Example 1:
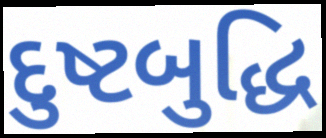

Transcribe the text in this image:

દુષ્ટબુદ્ધિ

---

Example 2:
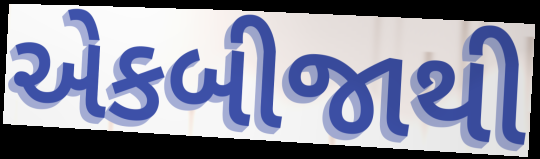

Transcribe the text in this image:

એકબીજાથી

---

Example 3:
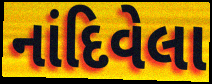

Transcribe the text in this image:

નાંદિવેલા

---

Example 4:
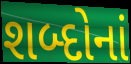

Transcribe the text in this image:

શબ્દોનાં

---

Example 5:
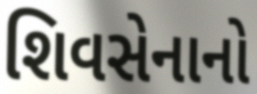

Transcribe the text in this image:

શિવસેનાનો